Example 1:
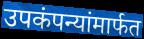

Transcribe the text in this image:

उपकंपन्यांमार्फत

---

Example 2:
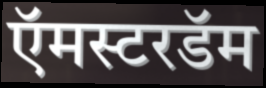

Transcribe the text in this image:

ऍमस्टरडॅम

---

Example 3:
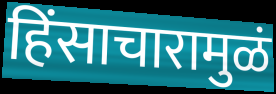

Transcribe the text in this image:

हिंसाचारामुळं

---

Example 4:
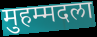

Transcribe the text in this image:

मुहम्मदला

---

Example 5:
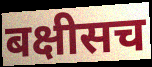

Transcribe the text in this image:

बक्षीसच